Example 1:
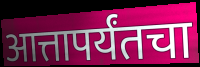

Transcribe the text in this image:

आत्तापर्यंतचा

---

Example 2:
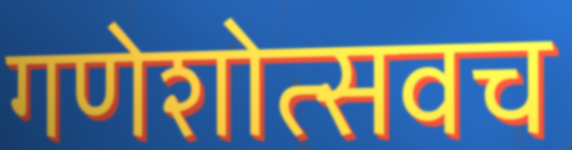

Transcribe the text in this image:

गणेशोत्सवच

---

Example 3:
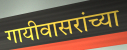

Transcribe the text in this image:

गायीवासरांच्या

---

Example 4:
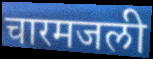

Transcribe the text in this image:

चारमजली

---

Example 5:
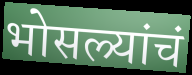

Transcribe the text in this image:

भोसल्यांचं